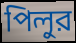
পিলুর